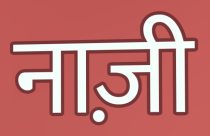
नाज़ी